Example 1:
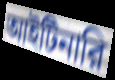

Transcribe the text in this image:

আইটিনারি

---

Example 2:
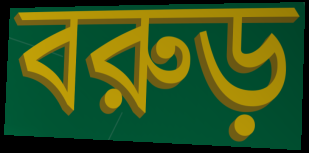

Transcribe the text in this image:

বরুড়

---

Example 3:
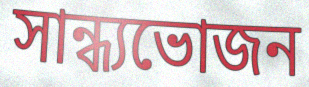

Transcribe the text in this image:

সান্ধ্যভোজন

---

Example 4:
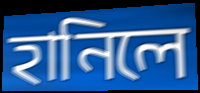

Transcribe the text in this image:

হানিলে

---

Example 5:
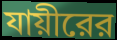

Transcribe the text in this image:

যায়ীরের